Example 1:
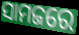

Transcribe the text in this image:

ସାମଜରେ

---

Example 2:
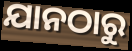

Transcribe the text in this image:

ଯାନଠାରୁ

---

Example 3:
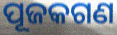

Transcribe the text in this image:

ପୂଜକଗଣ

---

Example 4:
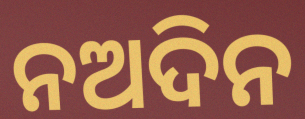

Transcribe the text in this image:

ନଅଦିନ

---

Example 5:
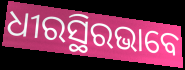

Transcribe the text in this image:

ଧୀରସ୍ଥିରଭାବେ